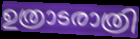
ഉത്രാടരാത്രി